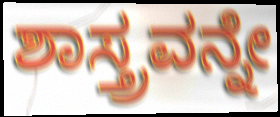
ಶಾಸ್ತ್ರವನ್ನೇ